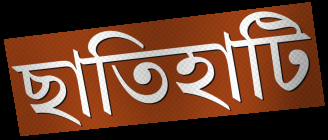
ছাতিহাটি